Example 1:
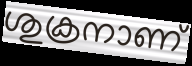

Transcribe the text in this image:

ശുക്രനാണ്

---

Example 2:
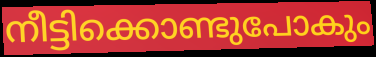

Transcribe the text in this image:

നീട്ടിക്കൊണ്ടുപോകും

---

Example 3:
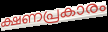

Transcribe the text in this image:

ക്ഷണപ്രകാരം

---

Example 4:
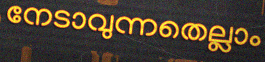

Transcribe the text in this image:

നേടാവുന്നതെല്ലാം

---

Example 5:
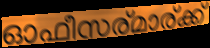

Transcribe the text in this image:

ഓഫീസര്മാര്ക്ക്